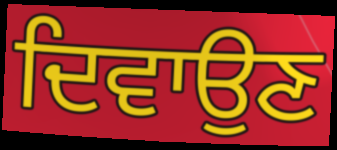
ਦਿਵਾਉਣ